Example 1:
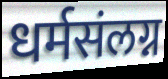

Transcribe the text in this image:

धर्मसंलग्न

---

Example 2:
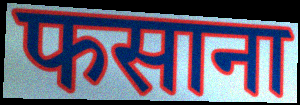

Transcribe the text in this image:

फसाना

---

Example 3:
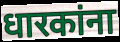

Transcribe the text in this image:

धारकांना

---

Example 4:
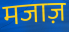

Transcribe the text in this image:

मजाज़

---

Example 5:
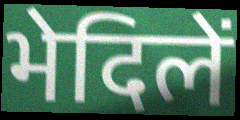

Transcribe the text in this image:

भेदिलें